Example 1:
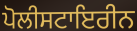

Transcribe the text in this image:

ਪੋਲੀਸਟਾਇਰੀਨ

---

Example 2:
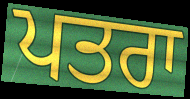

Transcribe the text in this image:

ਪਤਰਾ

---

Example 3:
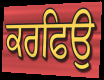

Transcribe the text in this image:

ਕਰਫਿਉ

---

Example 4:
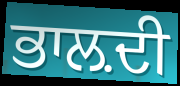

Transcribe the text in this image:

ਭਾਲ਼ਦੀ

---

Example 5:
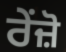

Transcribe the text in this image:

ਰੇਂਜ਼ੋ